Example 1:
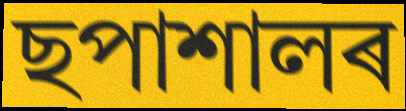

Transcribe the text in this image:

ছপাশালৰ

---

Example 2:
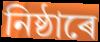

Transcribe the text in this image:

নিষ্ঠাৰে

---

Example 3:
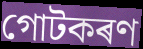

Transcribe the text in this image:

গোটকৰণ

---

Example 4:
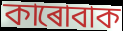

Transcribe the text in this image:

কাৰোবাক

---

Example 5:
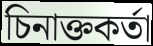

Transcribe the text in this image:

চিনাক্তকৰ্তা